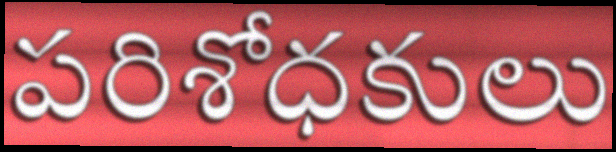
పరిశోధకులు